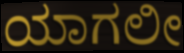
ಯಾಗಲೀ